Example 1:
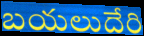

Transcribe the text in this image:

బయలుదేరి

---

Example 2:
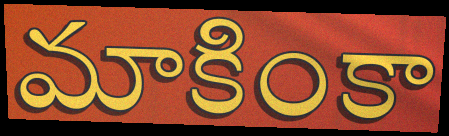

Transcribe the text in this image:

మాకింకా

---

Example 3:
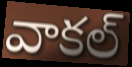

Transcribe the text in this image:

వాకల్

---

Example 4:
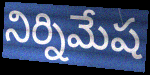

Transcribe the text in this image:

నిర్నిమేష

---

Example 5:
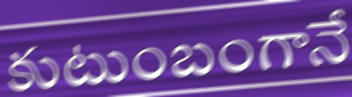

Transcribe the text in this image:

కుటుంబంగానే